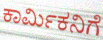
ಕಾರ್ಮಿಕನಿಗೆ